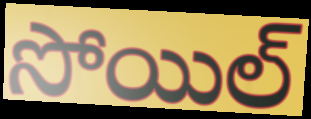
సోయిల్